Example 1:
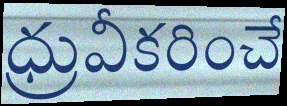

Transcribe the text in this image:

ధ్రువీకరించే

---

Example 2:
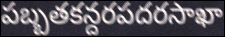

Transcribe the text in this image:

పబ్బతకన్దరపదరసాఖా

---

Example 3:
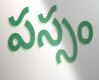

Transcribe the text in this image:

పస్సం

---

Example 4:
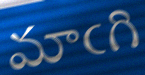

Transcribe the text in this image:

మాఁగి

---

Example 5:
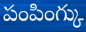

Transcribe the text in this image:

పంపింగ్కు